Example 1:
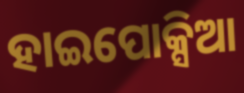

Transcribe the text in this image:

ହାଇପୋକ୍ସିଆ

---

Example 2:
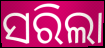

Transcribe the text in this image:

ସରିଲା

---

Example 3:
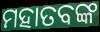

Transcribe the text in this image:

ମହାତବଙ୍କ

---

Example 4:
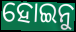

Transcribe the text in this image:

ହୋଇନୁ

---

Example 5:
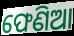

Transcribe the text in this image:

ଫେଣିଆ